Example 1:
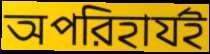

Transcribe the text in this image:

অপরিহার্যই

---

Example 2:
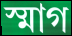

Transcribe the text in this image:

স্মাগ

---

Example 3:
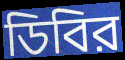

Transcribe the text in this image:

ডিবির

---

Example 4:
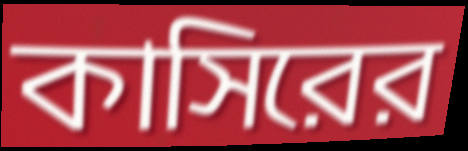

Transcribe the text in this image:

কাসিরের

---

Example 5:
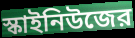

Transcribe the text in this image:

স্কাইনিউজের